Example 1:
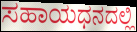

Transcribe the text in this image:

ಸಹಾಯಧನದಲ್ಲಿ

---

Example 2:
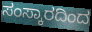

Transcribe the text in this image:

ಸಂಸ್ಕಾರದಿಂದ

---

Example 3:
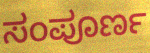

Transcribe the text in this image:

ಸಂಪೂರ್ಣ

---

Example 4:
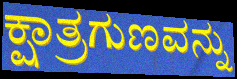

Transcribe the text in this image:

ಕ್ಷಾತ್ರಗುಣವನ್ನು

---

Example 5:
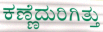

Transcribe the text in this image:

ಕಣ್ಣೆದುರಿಗಿತ್ತು